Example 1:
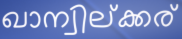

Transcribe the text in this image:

ഖാന്വില്ക്കര്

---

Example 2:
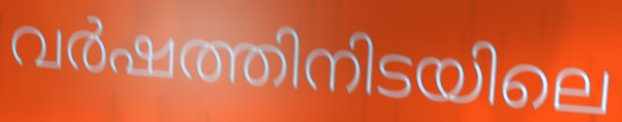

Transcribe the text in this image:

വർഷത്തിനിടയിലെ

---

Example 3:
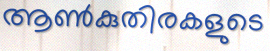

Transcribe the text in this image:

ആൺകുതിരകളുടെ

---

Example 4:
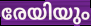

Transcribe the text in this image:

രേയിയും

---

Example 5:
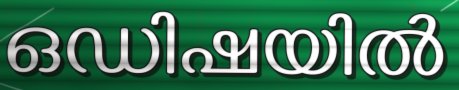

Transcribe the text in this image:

ഒഡിഷയിൽ